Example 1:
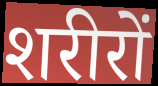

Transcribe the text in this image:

शरीरों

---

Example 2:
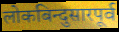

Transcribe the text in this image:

लोकबिन्दुसारपूर्व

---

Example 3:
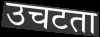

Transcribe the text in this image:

उचटता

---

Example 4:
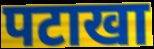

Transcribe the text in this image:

पटाखा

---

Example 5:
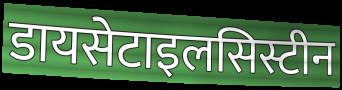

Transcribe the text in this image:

डायसेटाइलसिस्टीन